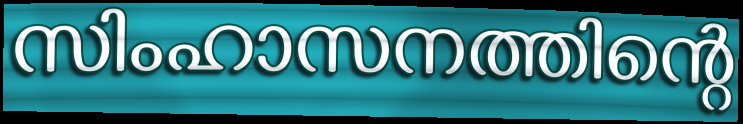
സിംഹാസനത്തിന്റെ